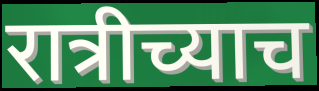
रात्रीच्याच